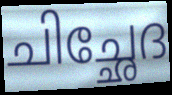
ചിച്ഛേദ